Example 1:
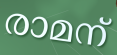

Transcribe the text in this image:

രാമന്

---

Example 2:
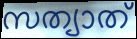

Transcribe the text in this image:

സത്യാത്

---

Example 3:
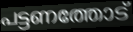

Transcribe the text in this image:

പട്ടണത്തോട്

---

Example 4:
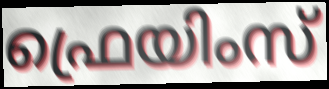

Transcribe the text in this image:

ഫ്രെയിംസ്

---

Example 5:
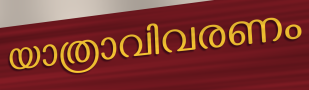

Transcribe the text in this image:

യാത്രാവിവരണം